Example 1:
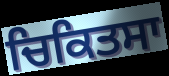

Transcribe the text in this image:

ਚਿਕਿਤਸਾ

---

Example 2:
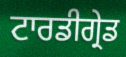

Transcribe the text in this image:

ਟਾਰਡੀਗ੍ਰੇਡ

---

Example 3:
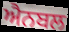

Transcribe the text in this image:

ਐਨਬਲ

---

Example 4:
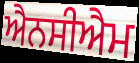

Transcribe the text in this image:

ਐਨਸੀਐਮ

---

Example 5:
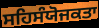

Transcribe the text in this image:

ਸਹਿਸੰਯੋਜਕਤਾ